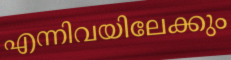
എന്നിവയിലേക്കും